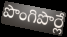
పొంగిపొర్లే